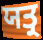
ਯਤ੍ਰ